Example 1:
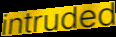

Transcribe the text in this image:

intruded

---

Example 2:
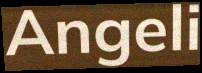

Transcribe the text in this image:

Angeli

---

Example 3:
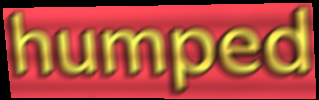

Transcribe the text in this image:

humped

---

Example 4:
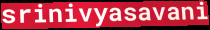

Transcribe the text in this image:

srinivyasavani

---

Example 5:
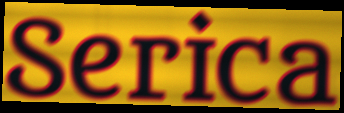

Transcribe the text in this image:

Serica